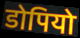
डोपियो